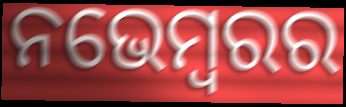
ନଭେମ୍ବରର